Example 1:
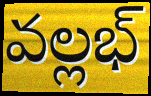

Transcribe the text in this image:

వల్లభ్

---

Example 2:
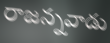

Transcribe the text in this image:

రాజన్నవాడు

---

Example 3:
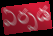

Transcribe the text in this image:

ఏర్పడ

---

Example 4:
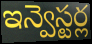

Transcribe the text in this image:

ఇన్వెస్టర్ల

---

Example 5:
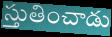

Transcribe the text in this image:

స్తుతించాడు